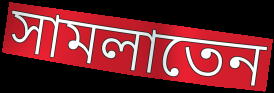
সামলাতেন